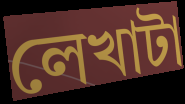
লেখাটা